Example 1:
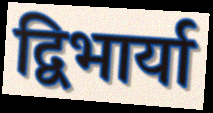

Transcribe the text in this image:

द्विभार्या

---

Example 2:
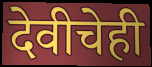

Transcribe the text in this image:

देवीचेही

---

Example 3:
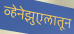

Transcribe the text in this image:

व्हेनेझुएलातून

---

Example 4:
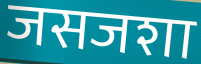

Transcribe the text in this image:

जसजशा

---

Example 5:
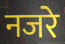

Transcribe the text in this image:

नजरे